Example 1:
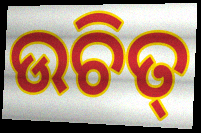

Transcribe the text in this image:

ଉଚିତ୍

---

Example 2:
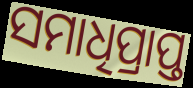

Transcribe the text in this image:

ସମାଧିପ୍ରାପ୍ତ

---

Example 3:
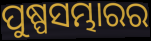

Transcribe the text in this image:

ପୁଷ୍ପସମ୍ଭାରର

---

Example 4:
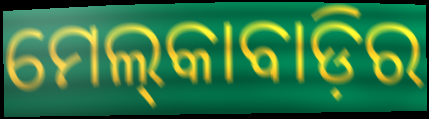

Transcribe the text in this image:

ମେଲ୍‍କାବାଡ଼ିର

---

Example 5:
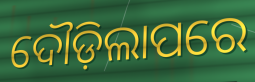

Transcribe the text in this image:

ଦୌଡ଼ିଲାପରେ